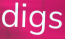
digs